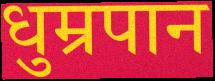
धुम्रपान